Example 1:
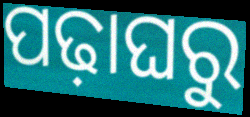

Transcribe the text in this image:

ପଢ଼ାଘରୁ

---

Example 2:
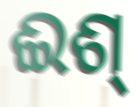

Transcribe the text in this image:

ଈଶ୍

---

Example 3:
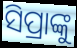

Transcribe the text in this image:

ସିପ୍ରାଙ୍କୁ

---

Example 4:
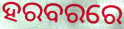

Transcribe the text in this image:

ହରବରରେ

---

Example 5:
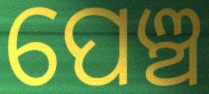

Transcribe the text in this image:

ପେଞ୍ଚ